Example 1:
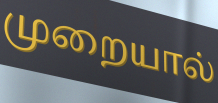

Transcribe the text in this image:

முறையால்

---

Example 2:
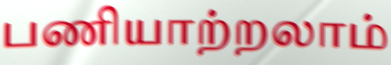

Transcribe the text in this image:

பணியாற்றலாம்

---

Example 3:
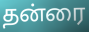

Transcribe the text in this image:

தன்ரை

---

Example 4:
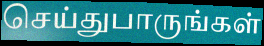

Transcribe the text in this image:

செய்துபாருங்கள்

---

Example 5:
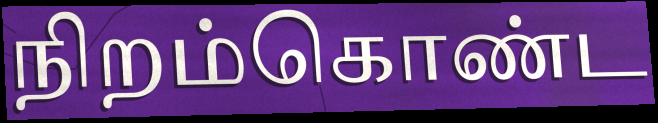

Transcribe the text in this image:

நிறம்கொண்ட